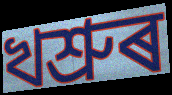
খশ্ৰুৰ